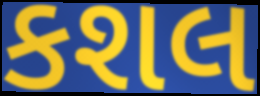
કશલ